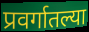
प्रवर्गातल्या